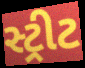
સ્ટ્રીટ